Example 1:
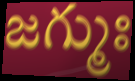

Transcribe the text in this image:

జగ్ముః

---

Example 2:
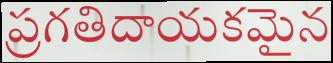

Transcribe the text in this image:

ప్రగతిదాయకమైన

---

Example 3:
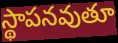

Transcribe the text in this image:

స్థాపనవుతూ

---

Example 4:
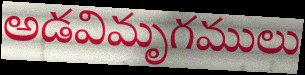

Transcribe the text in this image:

అడవిమృగములు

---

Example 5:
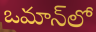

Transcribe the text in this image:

ఒమాన్‌లో